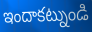
ఇందాకట్నుండి